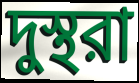
দুস্থরা